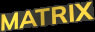
MATRIX